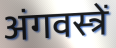
अंगवस्त्रें